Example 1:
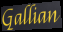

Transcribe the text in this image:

Gallian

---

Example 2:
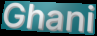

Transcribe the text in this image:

Ghani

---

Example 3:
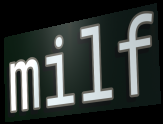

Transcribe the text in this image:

milf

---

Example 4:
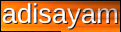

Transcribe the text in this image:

adisayam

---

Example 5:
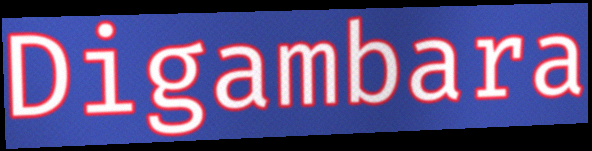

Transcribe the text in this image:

Digambara